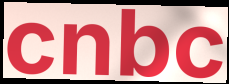
cnbc